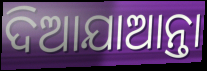
ଦିଆଯାଆନ୍ତା